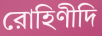
রোহিণীদি